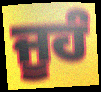
ਜੂਹੰ